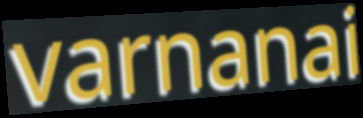
varnanai